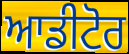
ਆਡੀਟੋਰ